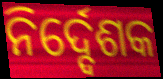
ନିର୍ଦ୍ଦେଶକ